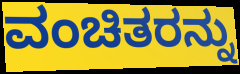
ವಂಚಿತರನ್ನು